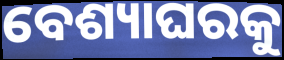
ବେଶ୍ୟାଘରକୁ